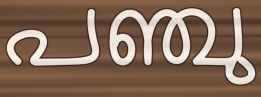
പഞ്ചു